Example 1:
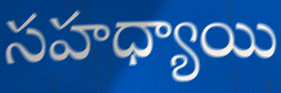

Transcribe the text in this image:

సహధ్యాయి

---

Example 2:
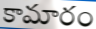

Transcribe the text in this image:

కామారం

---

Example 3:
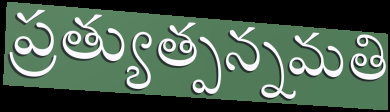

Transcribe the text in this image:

ప్రత్యుత్పన్నమతి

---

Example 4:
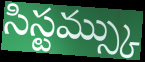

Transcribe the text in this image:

సిస్టమ్స్కు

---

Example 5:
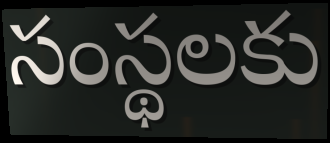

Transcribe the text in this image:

సంస్థలకు